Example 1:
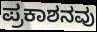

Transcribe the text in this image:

ಪ್ರಕಾಶನವು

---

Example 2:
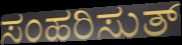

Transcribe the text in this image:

ಸಂಹರಿಸುತ್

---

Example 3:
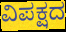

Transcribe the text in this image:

ವಿಪಕ್ಷದ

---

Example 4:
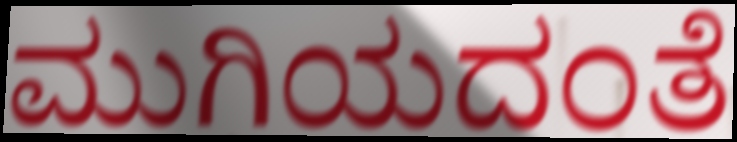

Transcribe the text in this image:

ಮುಗಿಯದಂತೆ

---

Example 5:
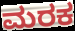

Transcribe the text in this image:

ಮರಕ